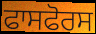
ਫਾਸਫੋਰਸ